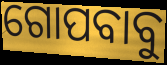
ଗୋପବାବୁ